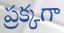
ప్రక్కగా